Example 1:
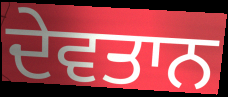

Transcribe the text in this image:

ਦੇਵਤਾਨ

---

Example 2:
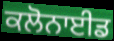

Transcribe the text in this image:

ਕਲੋਨਾਈਡ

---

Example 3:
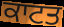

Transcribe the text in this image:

ਕਾਟਤ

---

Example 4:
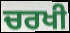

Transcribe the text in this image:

ਚਰਖੀ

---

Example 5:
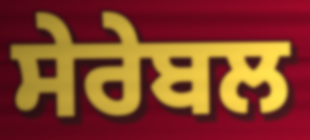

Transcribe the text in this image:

ਸੇਰੇਬਲ